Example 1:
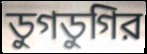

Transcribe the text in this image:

ডুগডুগির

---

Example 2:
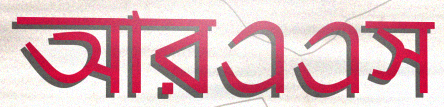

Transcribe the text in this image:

আরএএস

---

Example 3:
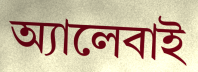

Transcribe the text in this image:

অ্যালেবাই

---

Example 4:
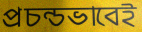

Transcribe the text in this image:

প্রচন্ডভাবেই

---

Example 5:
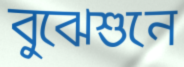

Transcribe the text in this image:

বুঝেশুনে